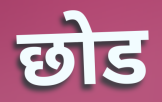
छोड